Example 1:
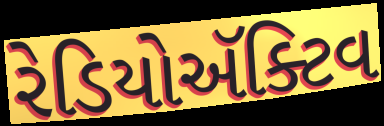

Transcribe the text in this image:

રેડિયોઍક્ટિવ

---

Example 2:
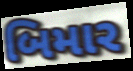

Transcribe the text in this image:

બિમાર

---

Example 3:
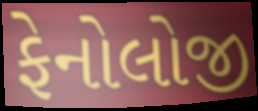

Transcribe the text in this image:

ફેનોલોજી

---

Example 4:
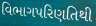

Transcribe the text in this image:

વિભાગપરિણતિથી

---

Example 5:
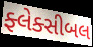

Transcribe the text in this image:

ફ્લેક્સીબલ